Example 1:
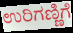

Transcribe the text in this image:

ಉರಿಗಣ್ಣಿಗೆ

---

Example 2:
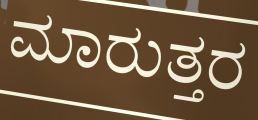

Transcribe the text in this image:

ಮಾರುತ್ತರ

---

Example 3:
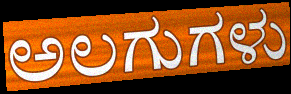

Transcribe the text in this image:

ಅಲಗುಗಳು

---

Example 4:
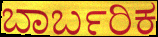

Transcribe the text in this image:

ಬಾರ್ಬರಿಕ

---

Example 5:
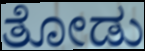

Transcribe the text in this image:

ತೋಡು